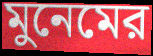
মুনেমের